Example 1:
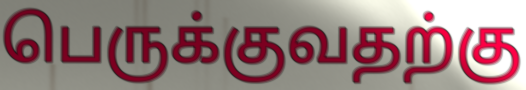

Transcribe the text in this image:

பெருக்குவதற்கு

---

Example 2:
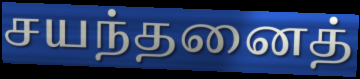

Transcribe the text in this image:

சயந்தனைத்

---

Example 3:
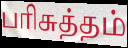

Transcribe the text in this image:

பரிசுத்தம்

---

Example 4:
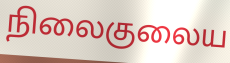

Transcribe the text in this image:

நிலைகுலைய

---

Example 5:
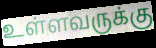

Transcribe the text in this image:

உள்ளவருக்கு